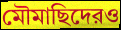
মৌমাছিদেরও